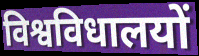
विश्वविधालयों